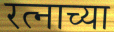
रत्नाच्या